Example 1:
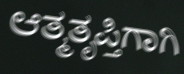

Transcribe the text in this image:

ಆತ್ಮತೃಪ್ತಿಗಾಗಿ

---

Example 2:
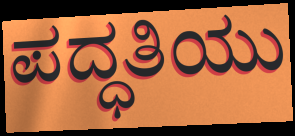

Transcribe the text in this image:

ಪದ್ಧತಿಯು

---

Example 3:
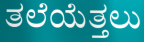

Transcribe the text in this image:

ತಲೆಯೆತ್ತಲು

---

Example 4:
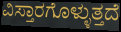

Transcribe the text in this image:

ವಿಸ್ತಾರಗೊಳ್ಳುತ್ತದೆ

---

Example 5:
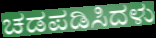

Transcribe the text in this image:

ಚಡಪಡಿಸಿದಳು